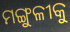
ମଙ୍ଗୁଳୀକୁ